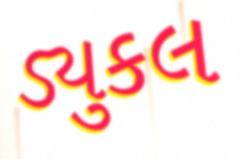
ડ્યુકલ